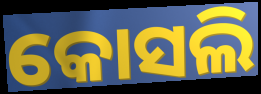
କୋସଲି